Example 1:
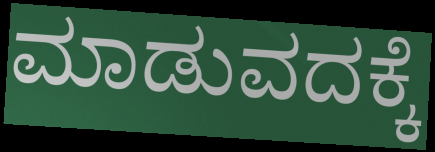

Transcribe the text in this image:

ಮಾಡುವದಕ್ಕೆ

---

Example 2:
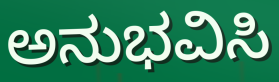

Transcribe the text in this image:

ಅನುಭವಿಸಿ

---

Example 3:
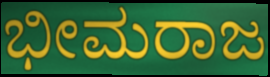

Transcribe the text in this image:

ಭೀಮರಾಜ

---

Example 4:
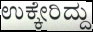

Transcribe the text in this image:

ಉಕ್ಕೇರಿದ್ದು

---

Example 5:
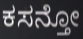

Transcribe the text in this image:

ಕಸನ್ತೋ